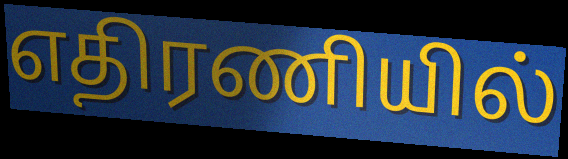
எதிரணியில்